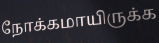
நோக்கமாயிருக்க